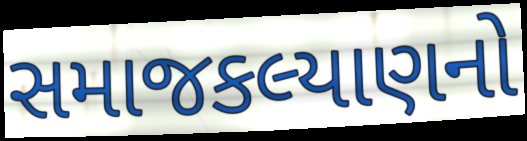
સમાજકલ્યાણનો